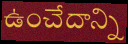
ఉంచేదాన్ని